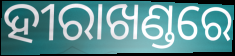
ହୀରାଖଣ୍ଡରେ